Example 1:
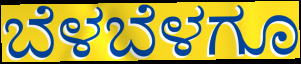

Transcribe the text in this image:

ಬೆಳಬೆಳಗೂ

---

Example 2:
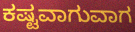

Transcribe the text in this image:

ಕಷ್ಟವಾಗುವಾಗ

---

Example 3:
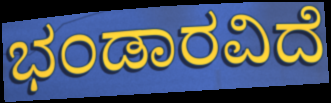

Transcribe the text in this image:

ಭಂಡಾರವಿದೆ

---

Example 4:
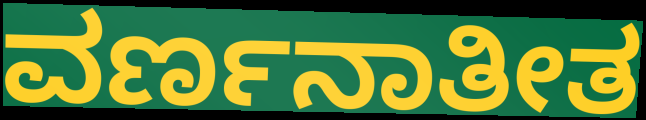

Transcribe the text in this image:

ವರ್ಣನಾತೀತ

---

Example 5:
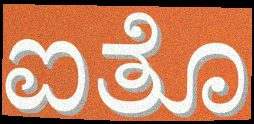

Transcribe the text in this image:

ಐತೊ